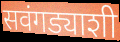
सवंगड्याशी